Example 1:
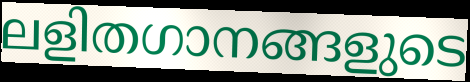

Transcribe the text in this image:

ലളിതഗാനങ്ങളുടെ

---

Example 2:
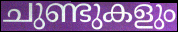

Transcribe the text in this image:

ചുണ്ടുകളും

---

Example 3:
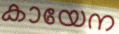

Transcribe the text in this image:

കായേന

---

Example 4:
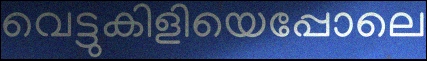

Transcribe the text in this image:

വെട്ടുകിളിയെപ്പോലെ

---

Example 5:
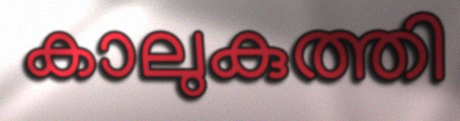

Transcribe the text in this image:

കാലുകുത്തി